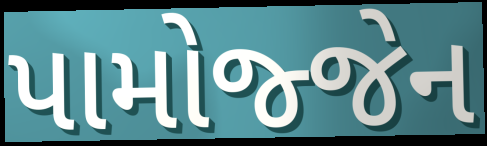
પામોજ્જેન